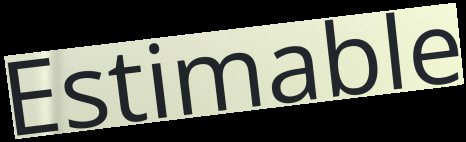
Estimable